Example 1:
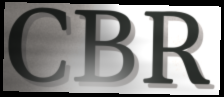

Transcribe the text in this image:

CBR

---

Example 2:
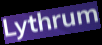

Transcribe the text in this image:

Lythrum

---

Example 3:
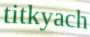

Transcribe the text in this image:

titkyach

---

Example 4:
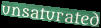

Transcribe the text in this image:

unsaturated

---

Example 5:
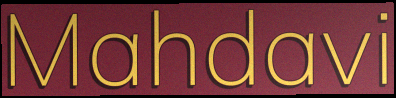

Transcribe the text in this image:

Mahdavi